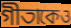
গীতাকেও